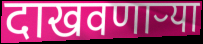
दाखवणाऱ्या